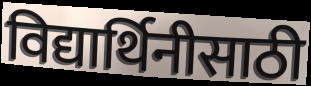
विद्यार्थिनीसाठी